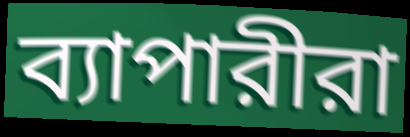
ব্যাপারীরা